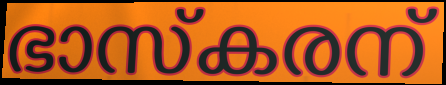
ഭാസ്‌കരന്